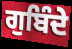
ਗੁਬਿੰਦੇ